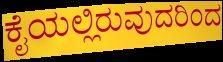
ಕೈಯಲ್ಲಿರುವುದರಿಂದ